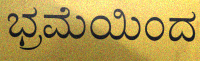
ಭ್ರಮೆಯಿಂದ